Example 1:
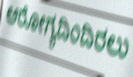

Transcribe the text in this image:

ಆರೋಗ್ಯದಿಂದಿರಲು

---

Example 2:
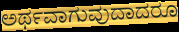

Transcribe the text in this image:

ಅರ್ಥವಾಗುವುದಾದರೂ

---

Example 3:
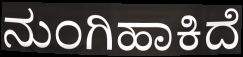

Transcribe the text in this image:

ನುಂಗಿಹಾಕಿದೆ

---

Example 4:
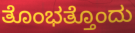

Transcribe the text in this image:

ತೊಂಭತ್ತೊಂದು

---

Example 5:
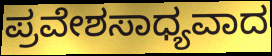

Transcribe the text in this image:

ಪ್ರವೇಶಸಾಧ್ಯವಾದ